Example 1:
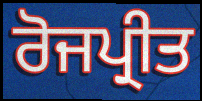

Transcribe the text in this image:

ਰੋਜਪ੍ਰੀਤ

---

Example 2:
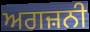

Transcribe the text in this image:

ਅਗਜ਼ਨੀ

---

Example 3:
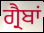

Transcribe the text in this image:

ਗ੍ਰੈਬਾਂ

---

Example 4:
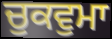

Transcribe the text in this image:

ਚੁਕਵੁਮਾ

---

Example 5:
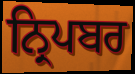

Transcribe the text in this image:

ਨ੍ਰਿਪਬਰ